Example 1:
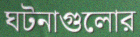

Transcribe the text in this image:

ঘটনাগুলোর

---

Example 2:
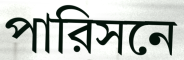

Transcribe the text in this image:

পারিসনে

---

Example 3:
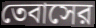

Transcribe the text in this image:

তেবাসের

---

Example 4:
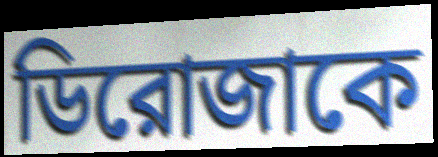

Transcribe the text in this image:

ডিরোজাকে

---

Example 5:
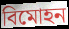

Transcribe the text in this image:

বিমোহন